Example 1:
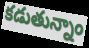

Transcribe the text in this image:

కడుతున్నాం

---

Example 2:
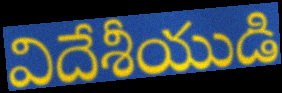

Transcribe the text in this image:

విదేశీయుడి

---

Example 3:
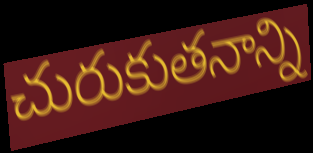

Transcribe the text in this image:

చురుకుతనాన్ని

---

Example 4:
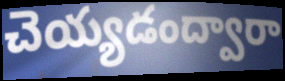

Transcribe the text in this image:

చెయ్యడంద్వారా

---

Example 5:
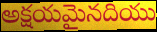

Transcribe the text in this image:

అక్షయమైనదియు